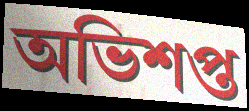
অভিশপ্ত